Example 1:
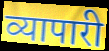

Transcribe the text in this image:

व्यापारी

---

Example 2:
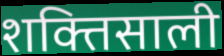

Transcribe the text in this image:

शक्तिसाली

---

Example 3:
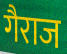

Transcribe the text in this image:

गैराज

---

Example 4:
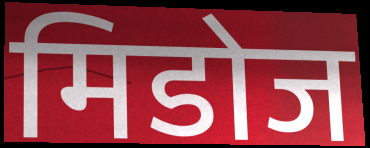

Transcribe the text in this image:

मिडोज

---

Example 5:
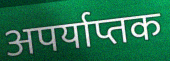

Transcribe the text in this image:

अपर्याप्तक